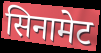
सिनामेट